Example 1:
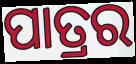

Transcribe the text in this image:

ପାତ୍ରର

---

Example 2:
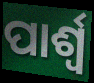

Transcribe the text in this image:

ପାର୍ଶ୍ୱ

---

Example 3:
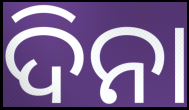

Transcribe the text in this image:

ଦିନା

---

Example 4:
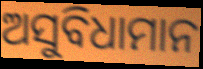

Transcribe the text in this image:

ଅସୁବିଧାମାନ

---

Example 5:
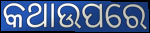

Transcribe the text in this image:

କଥାଉପରେ